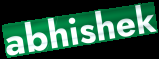
abhishek